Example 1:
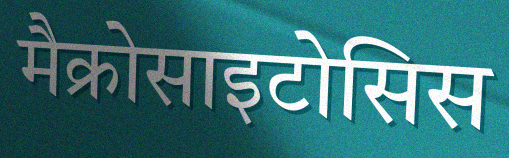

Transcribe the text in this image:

मैक्रोसाइटोसिस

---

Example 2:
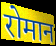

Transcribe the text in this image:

रोमान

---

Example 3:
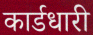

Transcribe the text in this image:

कार्डधारी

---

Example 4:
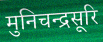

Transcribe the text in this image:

मुनिचन्द्रसूरि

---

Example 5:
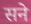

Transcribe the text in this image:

सने